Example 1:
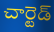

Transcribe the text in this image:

చార్టెడ్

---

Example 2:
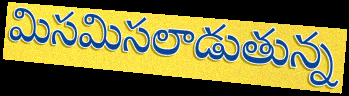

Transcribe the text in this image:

మిసమిసలాడుతున్న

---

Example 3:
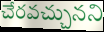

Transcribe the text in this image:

చేరవచ్చునని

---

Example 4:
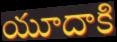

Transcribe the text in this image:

యూదాకి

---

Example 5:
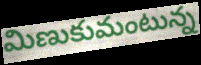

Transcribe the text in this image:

మిణుకుమంటున్న